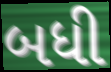
બધી